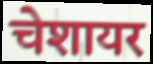
चेशायर